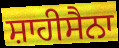
ਸ਼ਾਹੀਸੈਨਾ